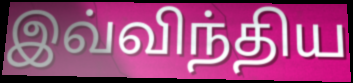
இவ்விந்திய